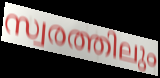
സ്വരത്തിലും